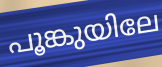
പൂങ്കുയിലേ